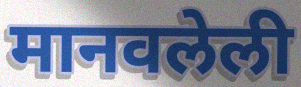
मानवलेली